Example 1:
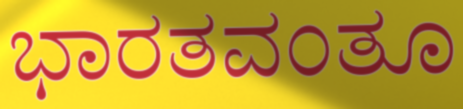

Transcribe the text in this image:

ಭಾರತವಂತೂ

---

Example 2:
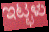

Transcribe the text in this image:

ಇಟ್ಟಳು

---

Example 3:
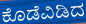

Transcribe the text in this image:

ಕೊಡೆವಿಡಿದ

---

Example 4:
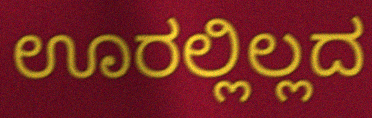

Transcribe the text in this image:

ಊರಲ್ಲಿಲ್ಲದ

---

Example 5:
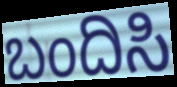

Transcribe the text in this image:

ಬಂದಿಸಿ